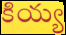
కియ్య